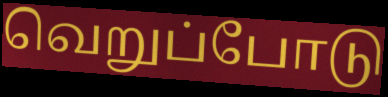
வெறுப்போடு